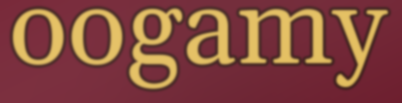
oogamy